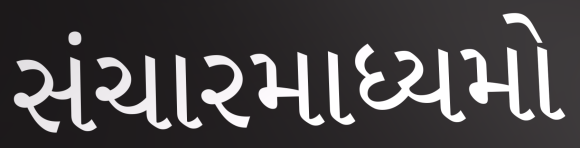
સંચારમાધ્યમો